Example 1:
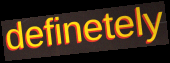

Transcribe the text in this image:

definetely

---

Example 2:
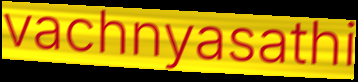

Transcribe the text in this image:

vachnyasathi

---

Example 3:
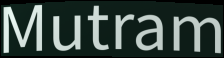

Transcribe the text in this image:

Mutram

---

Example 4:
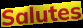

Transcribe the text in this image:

Salutes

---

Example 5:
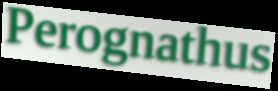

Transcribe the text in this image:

Perognathus